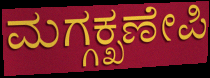
ಮಗ್ಗಕ್ಖಣೇಪಿ